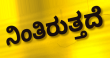
ನಿಂತಿರುತ್ತದೆ